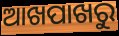
ଆଖପାଖରୁ